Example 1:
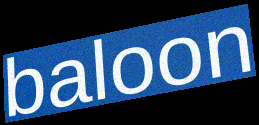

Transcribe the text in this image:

baloon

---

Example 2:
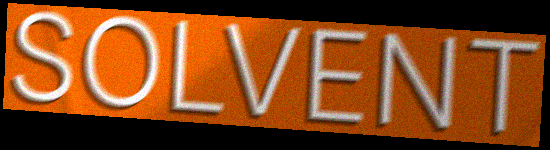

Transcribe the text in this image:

SOLVENT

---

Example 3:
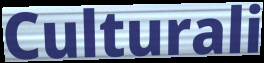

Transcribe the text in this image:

Culturali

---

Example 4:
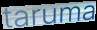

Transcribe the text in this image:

taruma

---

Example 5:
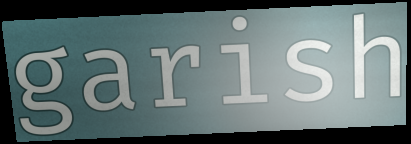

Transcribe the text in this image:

garish